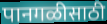
पानगळीसाठी